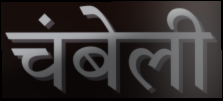
चंबेली